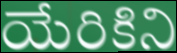
యేరికిని